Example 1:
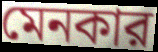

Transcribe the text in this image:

মেনকার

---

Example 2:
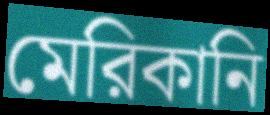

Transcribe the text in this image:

মেরিকানি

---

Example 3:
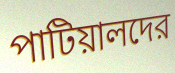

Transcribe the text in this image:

পাটিয়ালদের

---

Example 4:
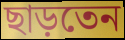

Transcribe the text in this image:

ছাড়তেন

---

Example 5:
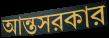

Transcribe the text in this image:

আন্তসরকার